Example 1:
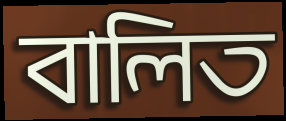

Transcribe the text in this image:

বালিত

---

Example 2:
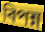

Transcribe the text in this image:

বিপন্ন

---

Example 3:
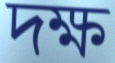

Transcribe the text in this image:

দক্ষ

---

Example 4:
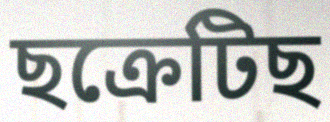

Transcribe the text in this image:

ছক্ৰেটিছ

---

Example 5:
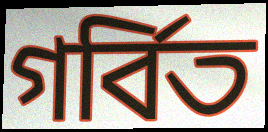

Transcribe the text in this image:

গৰ্বিত